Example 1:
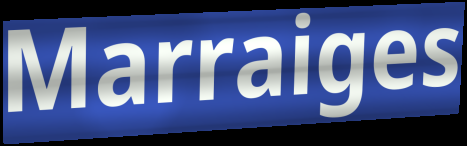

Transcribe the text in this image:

Marraiges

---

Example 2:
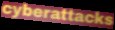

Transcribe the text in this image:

cyberattacks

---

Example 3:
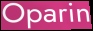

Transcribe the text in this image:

Oparin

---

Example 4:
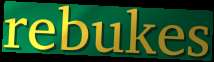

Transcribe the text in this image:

rebukes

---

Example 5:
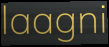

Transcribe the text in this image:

laagni